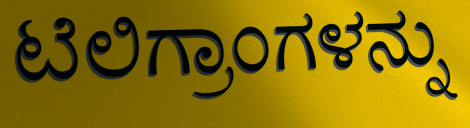
ಟೆಲಿಗ್ರಾಂಗಳನ್ನು